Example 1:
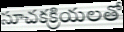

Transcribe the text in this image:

సూచకక్రియలతో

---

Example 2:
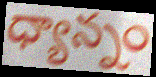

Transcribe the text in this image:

ధ్యాన్నం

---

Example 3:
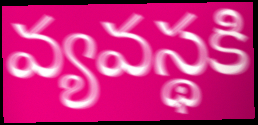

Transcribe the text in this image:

వ్యవస్థకి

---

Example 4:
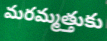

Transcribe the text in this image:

మరమ్మత్తుకు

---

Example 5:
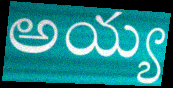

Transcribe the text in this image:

అయ్య